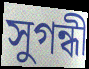
সুগন্ধী